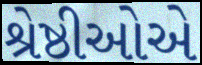
શ્રેષ્ઠીઓએ